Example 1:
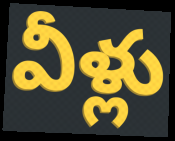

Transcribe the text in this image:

వీళ్లు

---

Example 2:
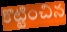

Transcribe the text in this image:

కొట్టించిన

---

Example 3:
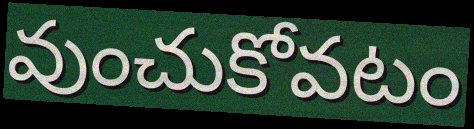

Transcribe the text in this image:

వుంచుకోవటం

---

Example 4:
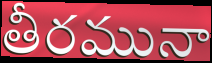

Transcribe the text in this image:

తీరమునా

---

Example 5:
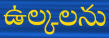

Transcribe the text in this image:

ఉల్కలను